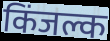
किंजल्क